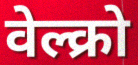
वेल्क्रो